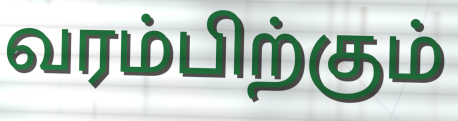
வரம்பிற்கும்